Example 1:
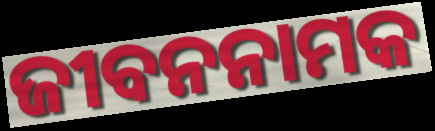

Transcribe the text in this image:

ଜୀବନନାମକ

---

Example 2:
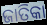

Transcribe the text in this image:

ଜାତିକା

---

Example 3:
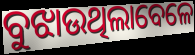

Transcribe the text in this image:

ବୁଝାଉଥିଲାବେଳେ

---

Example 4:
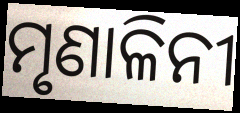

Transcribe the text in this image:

ମୃଣାଳିନୀ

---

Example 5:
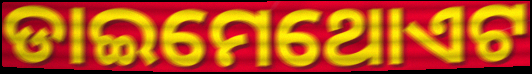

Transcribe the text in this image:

ଡାଇମେଥୋଏଟ